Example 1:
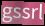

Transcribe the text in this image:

gssrl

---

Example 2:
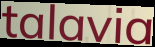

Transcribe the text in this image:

talavia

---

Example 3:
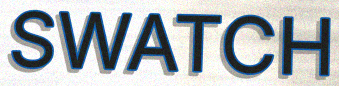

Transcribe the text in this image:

SWATCH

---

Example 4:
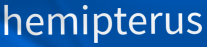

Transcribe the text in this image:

hemipterus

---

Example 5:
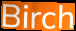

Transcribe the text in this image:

Birch